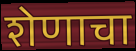
शेणाचा